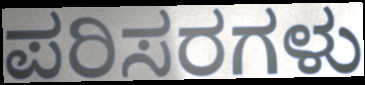
ಪರಿಸರಗಳು